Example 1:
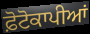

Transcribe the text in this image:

ਫ਼ੋਟੋਕਾਪੀਆਂ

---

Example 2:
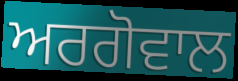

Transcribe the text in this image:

ਅਰਗੋਵਾਲ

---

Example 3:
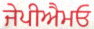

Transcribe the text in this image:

ਜੇਪੀਐਮਓ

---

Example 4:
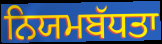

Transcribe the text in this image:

ਨਿਯਮਬੱਧਤਾ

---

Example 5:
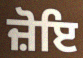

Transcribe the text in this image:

ਜ਼ੋਇ